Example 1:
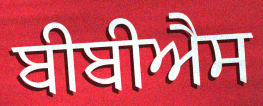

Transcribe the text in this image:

ਬੀਬੀਐਸ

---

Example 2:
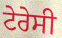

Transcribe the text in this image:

ਟੇਰੇਸੀ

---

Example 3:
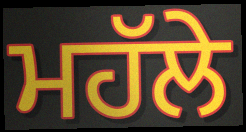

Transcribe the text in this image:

ਮਹੱਲੇ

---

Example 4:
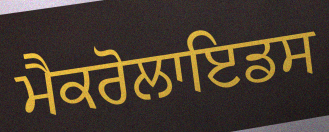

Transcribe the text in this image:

ਮੈਕਰੋਲਾਇਡਸ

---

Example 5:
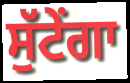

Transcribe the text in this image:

ਸੁੱਟੇਂਗਾ